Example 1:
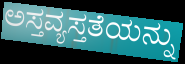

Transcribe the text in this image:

ಅಸ್ತವ್ಯಸ್ತತೆಯನ್ನು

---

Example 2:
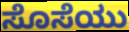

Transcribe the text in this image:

ಸೊಸೆಯು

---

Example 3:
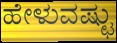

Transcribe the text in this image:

ಹೇಳುವಷ್ಟು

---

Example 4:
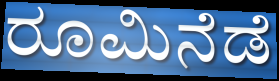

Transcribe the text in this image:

ರೂಮಿನೆಡೆ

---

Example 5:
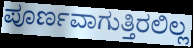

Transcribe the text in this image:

ಪೂರ್ಣವಾಗುತ್ತಿರಲಿಲ್ಲ